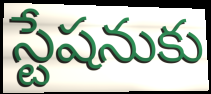
స్టేషనుకు